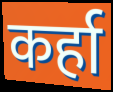
कर्हा